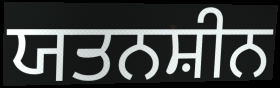
ਯਤਨਸ਼ੀਨ